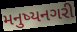
મનુષ્યનગરી